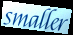
smaller